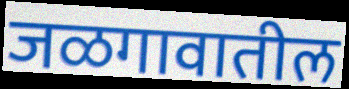
जळगावातील